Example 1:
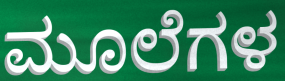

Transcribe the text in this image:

ಮೂಲೆಗಳ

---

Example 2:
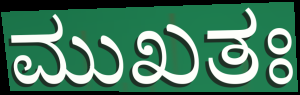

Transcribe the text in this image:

ಮುಖತಃ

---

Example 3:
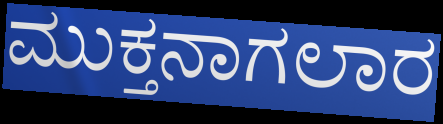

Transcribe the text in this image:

ಮುಕ್ತನಾಗಲಾರ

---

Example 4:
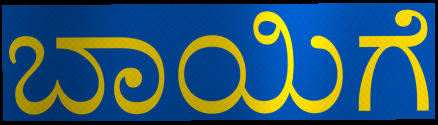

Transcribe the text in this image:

ಬಾಯಿಗೆ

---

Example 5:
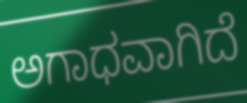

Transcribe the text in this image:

ಅಗಾಧವಾಗಿದೆ